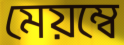
মেয়ম্বে